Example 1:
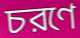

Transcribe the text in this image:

চরণে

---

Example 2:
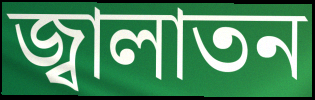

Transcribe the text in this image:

জ্বালাতন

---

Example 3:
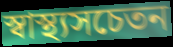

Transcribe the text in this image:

স্বাস্থ্যসচেতন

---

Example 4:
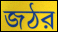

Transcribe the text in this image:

জঠর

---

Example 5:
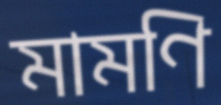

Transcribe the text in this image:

মামণি